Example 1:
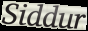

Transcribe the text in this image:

Siddur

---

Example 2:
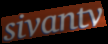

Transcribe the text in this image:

sivantv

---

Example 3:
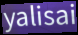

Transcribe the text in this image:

yalisai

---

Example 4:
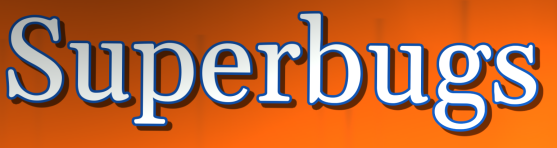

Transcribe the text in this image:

Superbugs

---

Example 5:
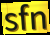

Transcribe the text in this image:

sfn